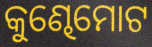
କୁଣ୍ଢେମୋଟ